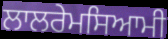
ਲਾਲਰੇਮਸਿਆਮੀ